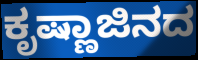
ಕೃಷ್ಣಾಜಿನದ